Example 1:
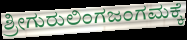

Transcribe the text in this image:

ಶ್ರೀಗುರುಲಿಂಗಜಂಗಮಕ್ಕೆ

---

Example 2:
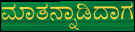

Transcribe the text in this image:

ಮಾತನ್ನಾಡಿದಾಗ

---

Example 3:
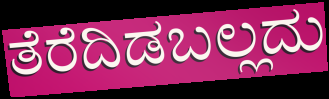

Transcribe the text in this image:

ತೆರೆದಿಡಬಲ್ಲದು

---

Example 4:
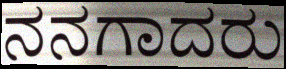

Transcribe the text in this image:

ನನಗಾದರು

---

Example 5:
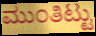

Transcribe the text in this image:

ಮುಂತಿಟ್ಟು